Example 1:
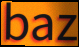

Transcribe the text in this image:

baz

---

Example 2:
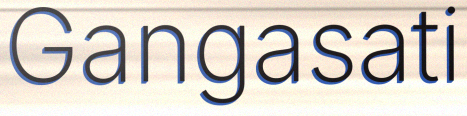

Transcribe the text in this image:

Gangasati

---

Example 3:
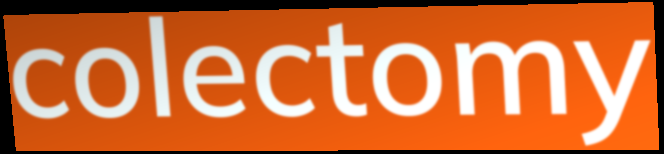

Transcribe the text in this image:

colectomy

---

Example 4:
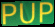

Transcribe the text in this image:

PUP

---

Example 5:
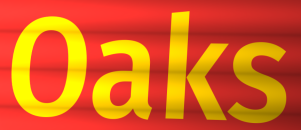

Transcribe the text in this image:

Oaks